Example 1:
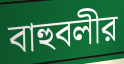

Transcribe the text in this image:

বাহুবলীর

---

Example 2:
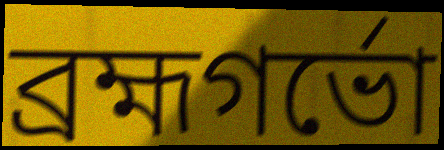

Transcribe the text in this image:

ব্রহ্মগর্ভো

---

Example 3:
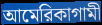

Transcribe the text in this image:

আমেরিকাগামী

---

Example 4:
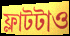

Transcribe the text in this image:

ফ্লাটটাও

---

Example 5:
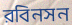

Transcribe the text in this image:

রবিনসন